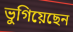
ভুগিয়েছেন